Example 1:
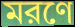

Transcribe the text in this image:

মরণে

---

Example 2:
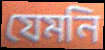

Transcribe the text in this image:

যেমনি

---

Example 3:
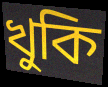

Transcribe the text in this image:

খুকি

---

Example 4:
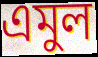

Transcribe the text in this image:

এমুল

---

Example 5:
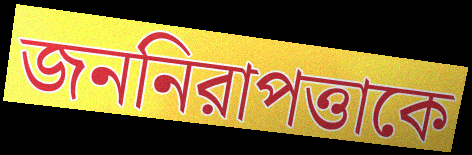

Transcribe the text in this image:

জননিরাপত্তাকে